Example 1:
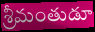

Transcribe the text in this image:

శ్రీమంతుడూ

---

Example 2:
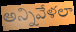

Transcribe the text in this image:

అన్నివేళలా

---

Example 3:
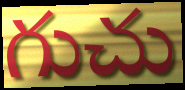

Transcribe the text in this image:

గుచు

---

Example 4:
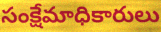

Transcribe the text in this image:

సంక్షేమాధికారులు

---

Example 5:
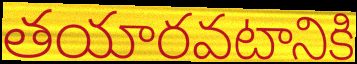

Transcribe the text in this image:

తయారవటానికి